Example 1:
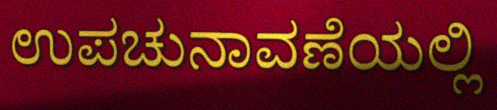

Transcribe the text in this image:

ಉಪಚುನಾವಣೆಯಲ್ಲಿ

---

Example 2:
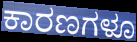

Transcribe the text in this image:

ಕಾರಣಗಳೂ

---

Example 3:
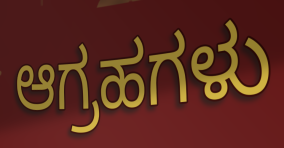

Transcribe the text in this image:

ಆಗ್ರಹಗಳು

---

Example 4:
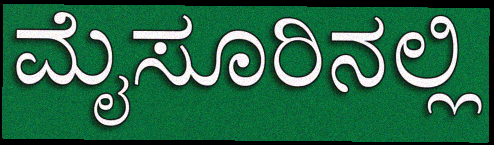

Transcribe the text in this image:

ಮೈಸೂರಿನಲ್ಲಿ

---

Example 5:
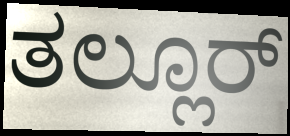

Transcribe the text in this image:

ತಲ್ಲೂರ್